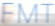
FMT